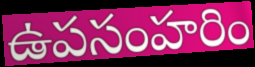
ఉపసంహరిం